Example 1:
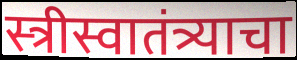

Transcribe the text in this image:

स्त्रीस्वातंत्र्याचा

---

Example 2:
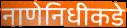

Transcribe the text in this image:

नाणेनिधीकडे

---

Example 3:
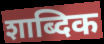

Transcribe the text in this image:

शाब्दिक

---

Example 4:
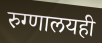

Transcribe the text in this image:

रुग्णालयही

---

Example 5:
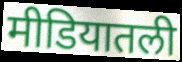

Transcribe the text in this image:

मीडियातली